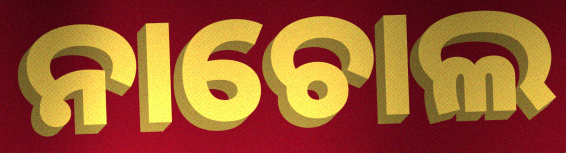
ନାଚୋଲ